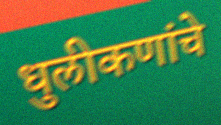
धुलीकणांचे